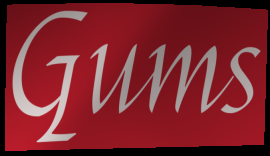
Gums